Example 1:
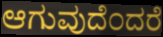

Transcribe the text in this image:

ಆಗುವುದೆಂದರೆ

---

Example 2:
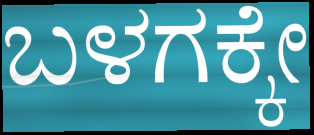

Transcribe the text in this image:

ಬಳಗಕ್ಕೇ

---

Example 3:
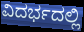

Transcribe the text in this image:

ವಿದರ್ಭದಲ್ಲಿ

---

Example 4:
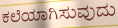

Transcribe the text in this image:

ಕಲೆಯಾಗಿಸುವುದು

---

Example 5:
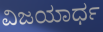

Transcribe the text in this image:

ವಿಜಯಾರ್ಧ